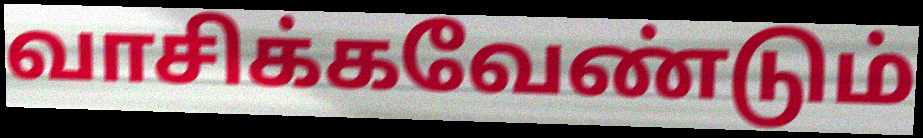
வாசிக்கவேண்டும்